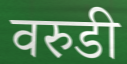
वरुडी